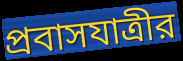
প্রবাসযাত্রীর